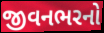
જીવનભરનો